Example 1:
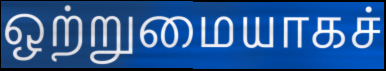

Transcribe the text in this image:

ஒற்றுமையாகச்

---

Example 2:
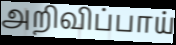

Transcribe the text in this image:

அறிவிப்பாய்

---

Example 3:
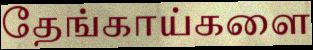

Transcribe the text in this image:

தேங்காய்களை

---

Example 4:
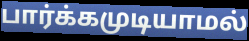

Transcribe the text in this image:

பார்க்கமுடியாமல்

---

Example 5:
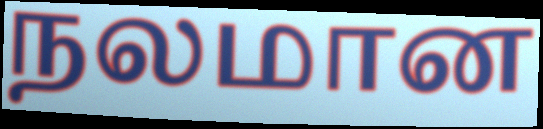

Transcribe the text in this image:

நலமான